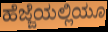
ಹೆಜ್ಜೆಯಲ್ಲಿಯೂ